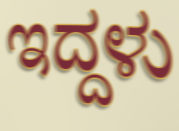
ಇದ್ದಳು